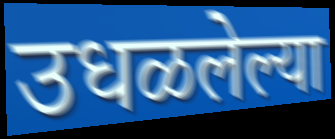
उधळलेल्या